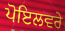
ਪੋਇਲਵਰੇ